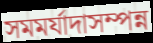
সমমর্যাদাসম্পন্ন